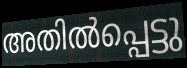
അതിൽപ്പെട്ടു